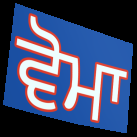
ਵੋਮਾ